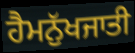
ਹੈਮਨੁੱਖਜਾਤੀ